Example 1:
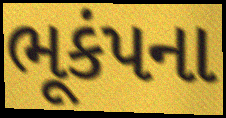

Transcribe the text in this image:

ભૂકંપના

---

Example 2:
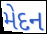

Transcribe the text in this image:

મેદન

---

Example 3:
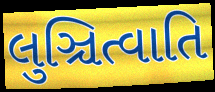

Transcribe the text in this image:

લુઞ્ચિત્વાતિ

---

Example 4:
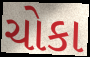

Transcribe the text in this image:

ચોકા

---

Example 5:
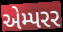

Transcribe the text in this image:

એમ્પરર